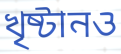
খৃষ্টানও